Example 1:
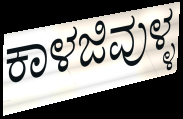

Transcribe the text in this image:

ಕಾಳಜಿವುಳ್ಳ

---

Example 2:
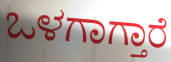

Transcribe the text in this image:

ಒಳಗಾಗ್ತಾರೆ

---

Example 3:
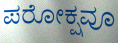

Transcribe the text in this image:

ಪರೋಕ್ಷವೂ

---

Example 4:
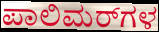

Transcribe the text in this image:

ಪಾಲಿಮರ್‌ಗಳ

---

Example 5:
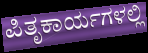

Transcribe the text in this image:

ಪಿತೃಕಾರ್ಯಗಳಲ್ಲಿ